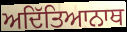
ਅਦਿੱਤਿਆਨਾਥ